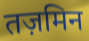
तज़मिन